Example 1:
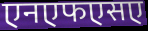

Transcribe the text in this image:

एनएफएसए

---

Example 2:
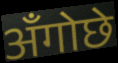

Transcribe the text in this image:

अँगोछे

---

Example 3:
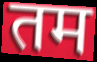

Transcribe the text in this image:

तम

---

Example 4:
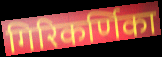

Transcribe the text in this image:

गिरिकर्णिका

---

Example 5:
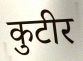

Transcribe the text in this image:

कुटीर